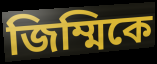
জিম্মিকে